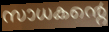
സാധകന്റെ